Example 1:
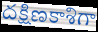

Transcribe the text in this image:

దక్షిణకాశిగా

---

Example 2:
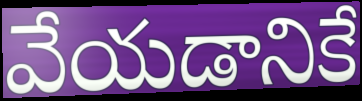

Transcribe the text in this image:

వేయడానికే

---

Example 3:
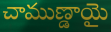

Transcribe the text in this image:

చాముణ్డాయై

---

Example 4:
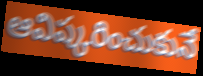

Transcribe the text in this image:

ఆవిష్కరించుకునే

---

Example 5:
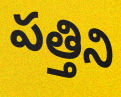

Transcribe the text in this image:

పత్తిని